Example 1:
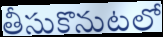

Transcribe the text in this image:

తీసుకొనుటలో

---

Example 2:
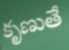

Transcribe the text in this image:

కృణుతే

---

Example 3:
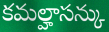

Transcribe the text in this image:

కమల్హాసన్కు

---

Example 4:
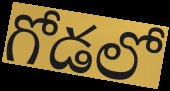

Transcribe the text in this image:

గోడలో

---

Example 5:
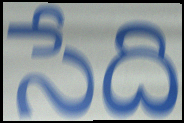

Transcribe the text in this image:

సేది